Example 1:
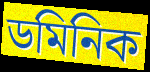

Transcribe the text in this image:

ডমিনিক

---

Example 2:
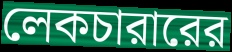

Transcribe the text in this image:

লেকচারারের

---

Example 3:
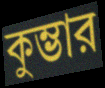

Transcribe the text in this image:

কুম্ভার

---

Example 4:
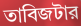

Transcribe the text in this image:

তাবিজটার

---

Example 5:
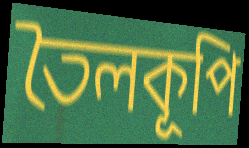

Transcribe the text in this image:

তৈলকূপি